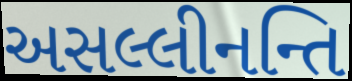
અસલ્લીનન્તિ